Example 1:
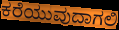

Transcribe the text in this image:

ಕರೆಯುವುದಾಗಲಿ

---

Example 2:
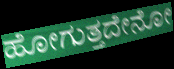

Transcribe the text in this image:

ಹೋಗುತ್ತದೇನೋ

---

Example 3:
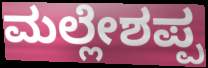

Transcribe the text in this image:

ಮಲ್ಲೇಶಪ್ಪ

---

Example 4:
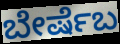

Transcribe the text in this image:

ಬೇರ್ಷೆಬ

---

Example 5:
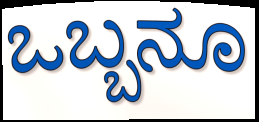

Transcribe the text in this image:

ಒಬ್ಬನೂ